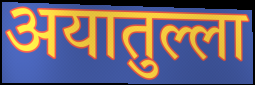
अयातुल्ला